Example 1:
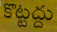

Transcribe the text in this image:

కొట్టద్దు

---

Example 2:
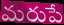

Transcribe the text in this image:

మరుపే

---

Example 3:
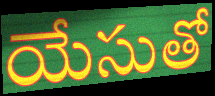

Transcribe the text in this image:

యేసుతో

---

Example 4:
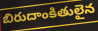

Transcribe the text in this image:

బిరుదాంకితులైన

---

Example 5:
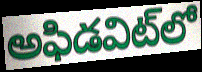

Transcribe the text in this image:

అఫిడవిట్‌లో